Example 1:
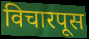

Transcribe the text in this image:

विचारपूस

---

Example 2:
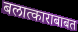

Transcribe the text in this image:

बलात्काराबाबत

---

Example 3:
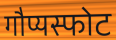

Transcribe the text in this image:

गौप्यस्फोट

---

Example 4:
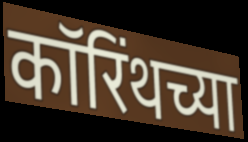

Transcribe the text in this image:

कॉरिंथच्या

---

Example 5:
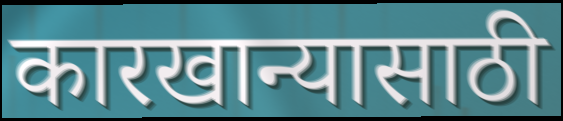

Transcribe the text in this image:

कारखान्यासाठी